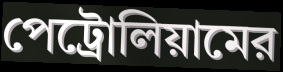
পেট্রোলিয়ামের